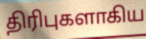
திரிபுகளாகிய